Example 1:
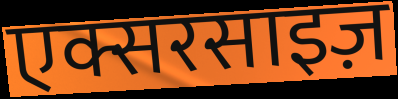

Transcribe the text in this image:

एक्सरसाइज़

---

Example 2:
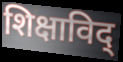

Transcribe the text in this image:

शिक्षाविद्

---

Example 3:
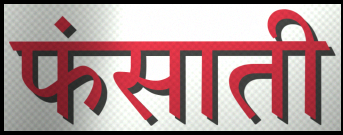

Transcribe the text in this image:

फंसाती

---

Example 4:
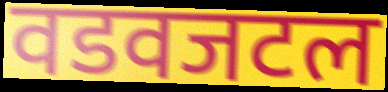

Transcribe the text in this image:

वडवजटल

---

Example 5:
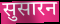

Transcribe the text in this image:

सुसारन